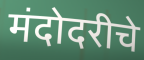
मंदोदरीचे